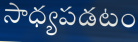
సాధ్యపడటం